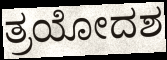
ತ್ರಯೋದಶ